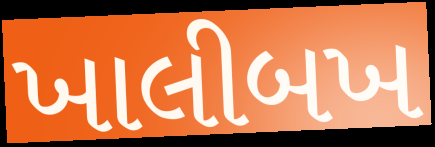
ખાલીબખ